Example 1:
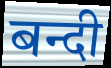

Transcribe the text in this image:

बन्दी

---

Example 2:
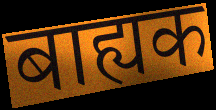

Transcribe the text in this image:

बाह्यक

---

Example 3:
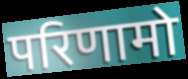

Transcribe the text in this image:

परिणामो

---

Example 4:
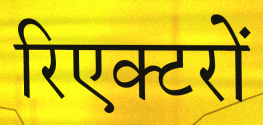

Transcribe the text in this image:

रिएक्टरों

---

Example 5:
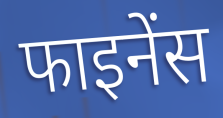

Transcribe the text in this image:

फाइनेंस